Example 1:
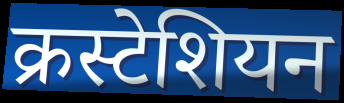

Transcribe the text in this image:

क्रस्टेशियन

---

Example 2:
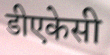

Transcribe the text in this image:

डीएकेसी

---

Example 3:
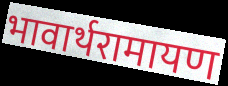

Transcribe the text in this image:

भावार्थरामायण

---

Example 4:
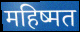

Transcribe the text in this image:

महिष्मत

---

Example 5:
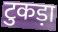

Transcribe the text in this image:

टुकड़ा